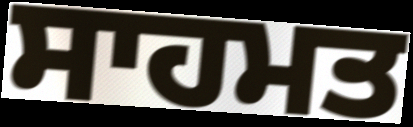
ਸਾਹਮਤ